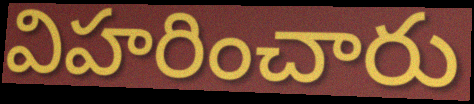
విహరించారు